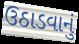
ઉઠાડવાનું